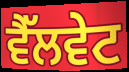
ਵੈੱਲਵੇਟ